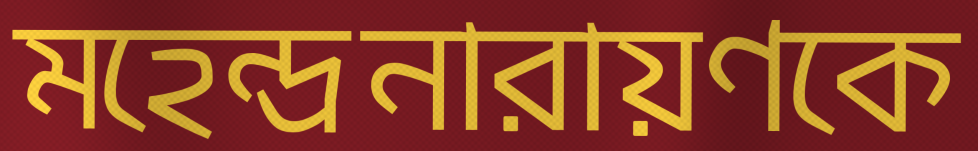
মহেন্দ্রনারায়ণকে